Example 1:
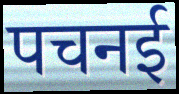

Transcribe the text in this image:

पचनई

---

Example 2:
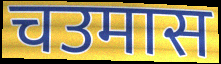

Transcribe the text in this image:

चउमास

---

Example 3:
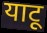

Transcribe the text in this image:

याटू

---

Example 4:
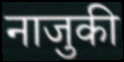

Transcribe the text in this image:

नाजुकी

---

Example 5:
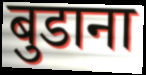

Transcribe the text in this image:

बुडाना